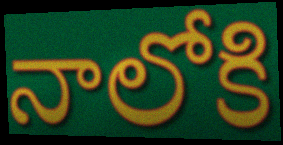
నాలోకి